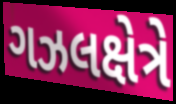
ગઝલક્ષેત્રે